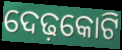
ଦେଢ଼କୋଟି